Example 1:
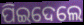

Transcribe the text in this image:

ପିଇଦେଲେ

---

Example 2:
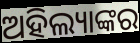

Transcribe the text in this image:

ଅହିଲ୍ୟାଙ୍କର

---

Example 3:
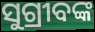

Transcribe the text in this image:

ସୁଗ୍ରୀବଙ୍କ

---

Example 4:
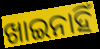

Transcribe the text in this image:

ଖାଇନାହିଁ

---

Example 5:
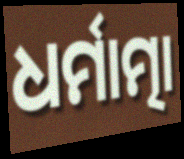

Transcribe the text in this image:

ଧର୍ମାତ୍ମା